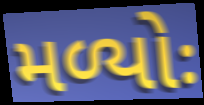
મળ્યોઃ